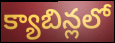
క్యాబిన్లలో